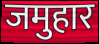
जमुहार